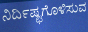
ನಿರ್ದಿಷ್ಟಗೊಳಿಸುವ